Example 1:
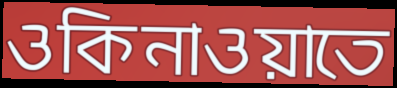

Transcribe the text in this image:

ওকিনাওয়াতে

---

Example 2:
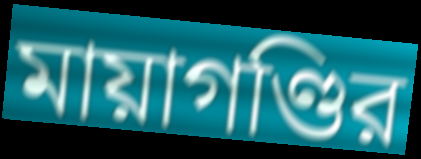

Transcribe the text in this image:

মায়াগণ্ডির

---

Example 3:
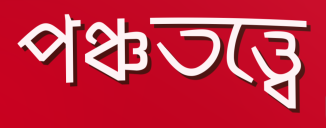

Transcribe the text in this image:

পঞ্চতত্ত্বে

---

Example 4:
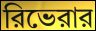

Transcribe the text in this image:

রিভেরার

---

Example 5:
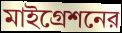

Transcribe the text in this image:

মাইগ্রেশনের